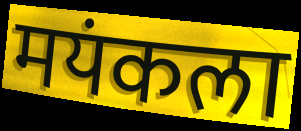
मयंकला